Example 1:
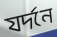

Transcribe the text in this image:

যর্দনে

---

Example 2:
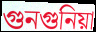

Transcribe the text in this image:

গুনগুনিয়া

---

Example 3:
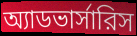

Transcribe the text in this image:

অ্যাডভার্সারিস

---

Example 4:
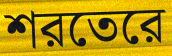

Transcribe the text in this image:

শরতেরে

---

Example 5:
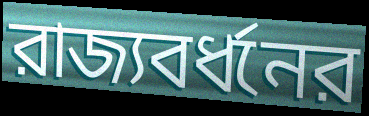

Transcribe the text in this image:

রাজ্যবর্ধনের